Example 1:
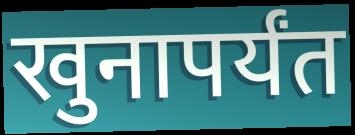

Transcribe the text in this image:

खुनापर्यंत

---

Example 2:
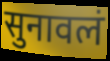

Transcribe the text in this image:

सुनावलं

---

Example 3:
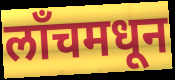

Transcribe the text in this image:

लॉंचमधून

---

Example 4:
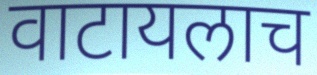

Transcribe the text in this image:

वाटायलाच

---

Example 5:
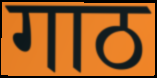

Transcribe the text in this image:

गाठ